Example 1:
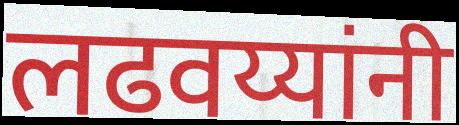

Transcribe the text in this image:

लढवय्यांनी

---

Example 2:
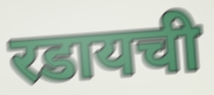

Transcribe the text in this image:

रडायची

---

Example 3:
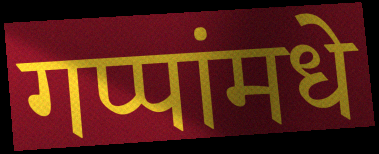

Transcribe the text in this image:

गप्पांमधे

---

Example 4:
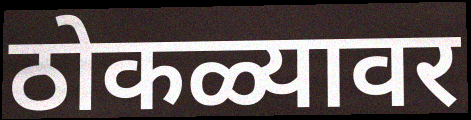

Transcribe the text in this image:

ठोकळ्यावर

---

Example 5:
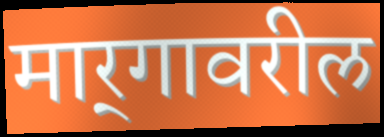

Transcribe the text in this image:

मार्गावरील